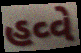
હવ્વે